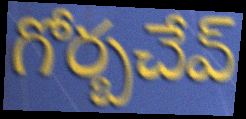
గోర్బచేవ్